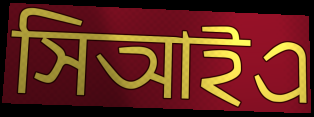
সিআইএ